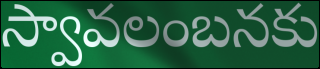
స్వావలంబనకు